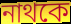
নাথকে